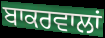
ਬਾਕਰਵਾਲਾਂ